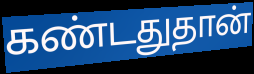
கண்டதுதான்